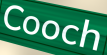
Cooch